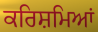
ਕਰਿਸ਼ਮਿਆਂ